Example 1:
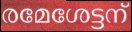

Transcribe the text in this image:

രമേശേട്ടന്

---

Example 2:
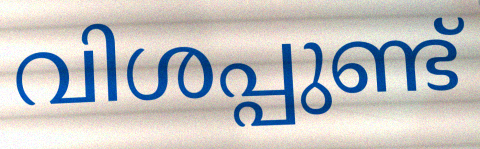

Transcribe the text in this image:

വിശപ്പുണ്ട്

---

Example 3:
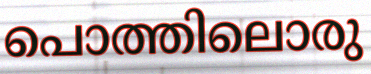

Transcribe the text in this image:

പൊത്തിലൊരു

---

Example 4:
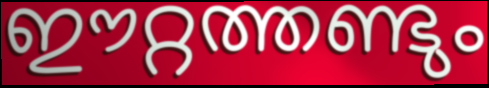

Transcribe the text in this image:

ഈറ്റത്തണ്ടും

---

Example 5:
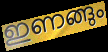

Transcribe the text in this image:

ഇണങ്ങും